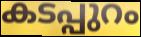
കടപ്പുറം